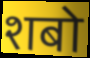
शबो